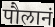
पौलानं